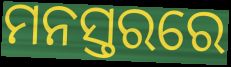
ମନସ୍ତରରେ